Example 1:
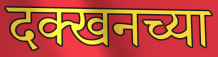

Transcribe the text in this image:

दक्खनच्या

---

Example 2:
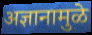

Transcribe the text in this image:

अज्ञानामुळे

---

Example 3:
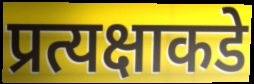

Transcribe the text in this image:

प्रत्यक्षाकडे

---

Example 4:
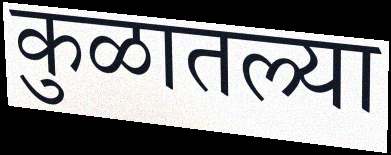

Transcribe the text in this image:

कुळातल्या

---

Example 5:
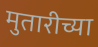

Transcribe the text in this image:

मुतारीच्या